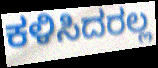
ಕಳಿಸಿದರಲ್ಲ